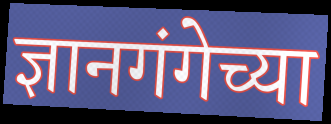
ज्ञानगंगेच्या